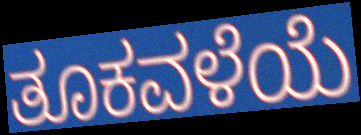
ತೂಕವಳೆಯೆ